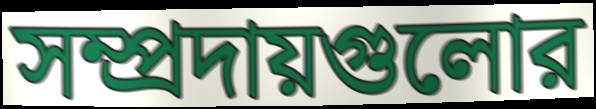
সম্প্রদায়গুলোর